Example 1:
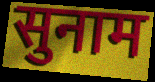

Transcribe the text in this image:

सुनाम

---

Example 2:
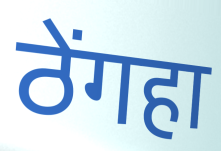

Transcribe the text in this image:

ठेंगहा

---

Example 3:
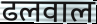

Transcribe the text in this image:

ढलवाल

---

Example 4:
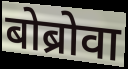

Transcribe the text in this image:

बोब्रोवा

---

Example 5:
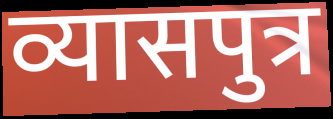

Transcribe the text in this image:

व्यासपुत्र